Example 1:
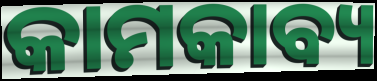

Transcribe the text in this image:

କାମକାବ୍ୟ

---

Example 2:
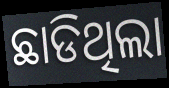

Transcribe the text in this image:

ଛାଡିଥିଲା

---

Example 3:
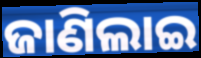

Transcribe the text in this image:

ଜାଣିଲାଇ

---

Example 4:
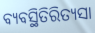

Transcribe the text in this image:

ବ୍ୟବସ୍ଥିତିରିତ୍ୟସା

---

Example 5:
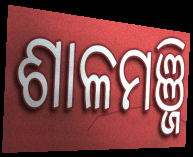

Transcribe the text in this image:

ଶାଳମଞ୍ଜି